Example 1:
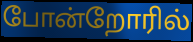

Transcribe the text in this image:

போன்றோரில்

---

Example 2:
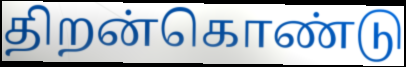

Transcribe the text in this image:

திறன்கொண்டு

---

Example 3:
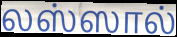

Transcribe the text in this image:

லஸ்ஸால்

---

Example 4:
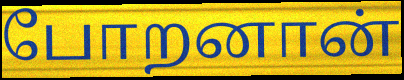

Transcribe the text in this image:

போறனான்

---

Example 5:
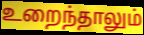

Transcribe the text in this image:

உறைந்தாலும்